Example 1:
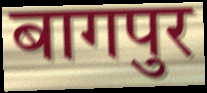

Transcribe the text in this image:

बागपुर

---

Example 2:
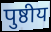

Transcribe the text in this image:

पुष्ठीय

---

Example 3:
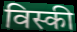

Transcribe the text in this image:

विस्की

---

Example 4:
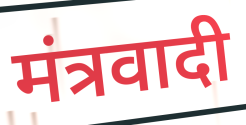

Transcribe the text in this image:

मंत्रवादी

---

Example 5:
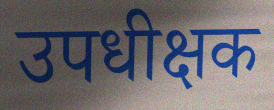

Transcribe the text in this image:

उपधीक्षक